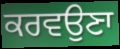
ਕਰਵਉਣਾ